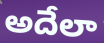
అదేలా